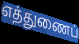
எத்துணைப்